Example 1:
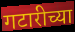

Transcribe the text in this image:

गटारीच्या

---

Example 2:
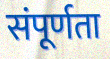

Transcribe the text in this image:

संपूर्णता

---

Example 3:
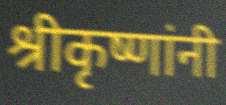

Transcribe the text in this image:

श्रीकृष्णांनी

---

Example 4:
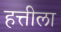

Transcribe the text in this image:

हत्तीला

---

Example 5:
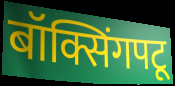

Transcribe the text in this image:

बॉक्सिंगपटू